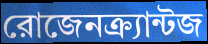
রোজেনক্র্যান্টজ